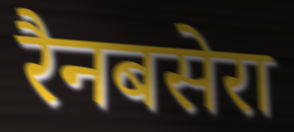
रैनबसेरा